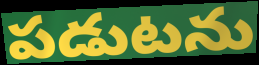
పడుటను